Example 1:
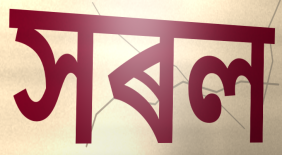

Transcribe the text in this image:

সৰল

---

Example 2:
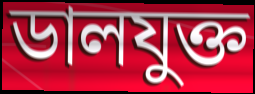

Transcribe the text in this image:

ডালযুক্ত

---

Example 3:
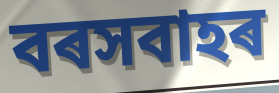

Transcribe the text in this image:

বৰসবাহৰ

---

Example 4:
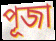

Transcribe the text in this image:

পূজা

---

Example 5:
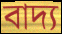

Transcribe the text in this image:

বাদ্য